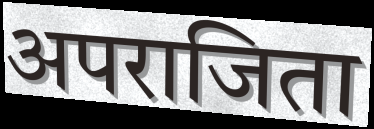
अपराजिता